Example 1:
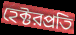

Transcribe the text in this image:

হেক্টরপ্রতি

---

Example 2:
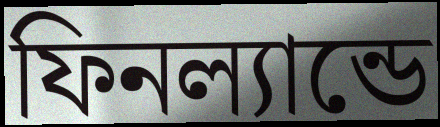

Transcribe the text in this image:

ফিনল্যান্ডে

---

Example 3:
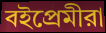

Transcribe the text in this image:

বইপ্রেমীরা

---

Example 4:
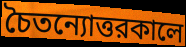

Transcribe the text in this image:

চৈতন্যোত্তরকালে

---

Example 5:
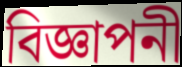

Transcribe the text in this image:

বিজ্ঞাপনী